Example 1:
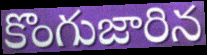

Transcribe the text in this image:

కొంగుజారిన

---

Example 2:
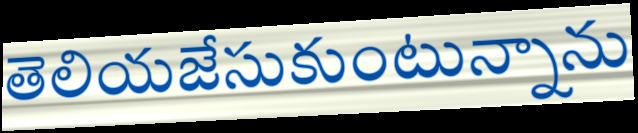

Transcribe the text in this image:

తెలియజేసుకుంటున్నాను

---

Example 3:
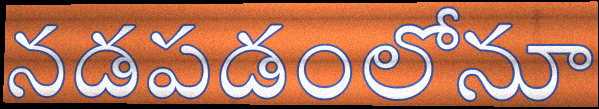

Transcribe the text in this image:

నడపడంలోనూ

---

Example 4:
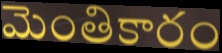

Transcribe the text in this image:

మెంతికారం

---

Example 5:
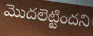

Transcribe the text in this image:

మొదలెట్టిందని